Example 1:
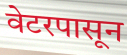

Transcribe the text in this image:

वेटरपासून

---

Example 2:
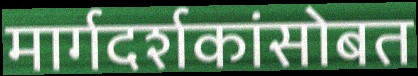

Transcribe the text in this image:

मार्गदर्शकांसोबत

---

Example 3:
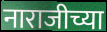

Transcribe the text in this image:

नाराजीच्या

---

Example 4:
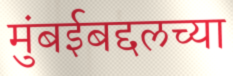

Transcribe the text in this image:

मुंबईबद्दलच्या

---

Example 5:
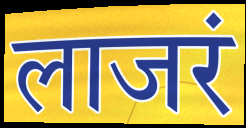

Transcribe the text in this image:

लाजरं